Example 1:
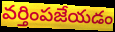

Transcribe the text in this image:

వర్తింపజేయడం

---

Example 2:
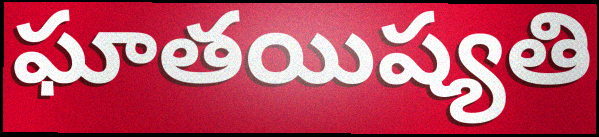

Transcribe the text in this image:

ఘాతయిష్యతి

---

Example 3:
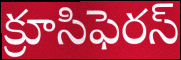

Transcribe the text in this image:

క్రూసిఫెరస్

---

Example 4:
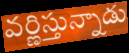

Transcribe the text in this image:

వర్ణిస్తున్నాడు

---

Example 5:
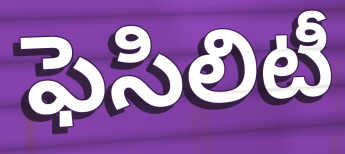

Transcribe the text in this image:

ఫెసిలిటీ